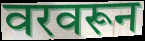
वरवरून